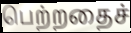
பெற்றதைச்